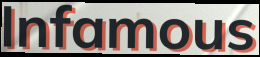
Infamous